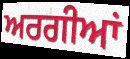
ਅਰਗੀਆਂ